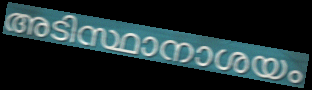
അടിസ്ഥാനാശയം